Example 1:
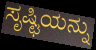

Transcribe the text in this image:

ಸೃಷ್ಟಿಯನ್ನು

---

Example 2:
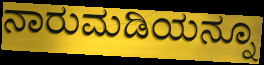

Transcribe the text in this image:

ನಾರುಮಡಿಯನ್ನೂ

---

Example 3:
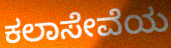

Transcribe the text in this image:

ಕಲಾಸೇವೆಯ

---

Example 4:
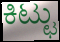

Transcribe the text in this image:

ಕಿಟ್ಟು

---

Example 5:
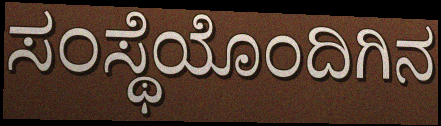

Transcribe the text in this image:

ಸಂಸ್ಥೆಯೊಂದಿಗಿನ